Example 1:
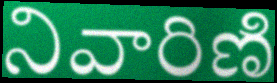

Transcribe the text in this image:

నివారిణి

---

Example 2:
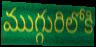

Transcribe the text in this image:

ముగ్గురిలోకి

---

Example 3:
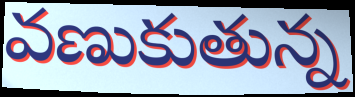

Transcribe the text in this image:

వణుకుతున్న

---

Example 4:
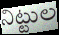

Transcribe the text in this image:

నిట్టుల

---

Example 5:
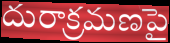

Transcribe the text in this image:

దురాక్రమణపై